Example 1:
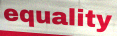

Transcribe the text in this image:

equality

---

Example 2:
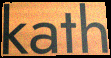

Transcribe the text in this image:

kath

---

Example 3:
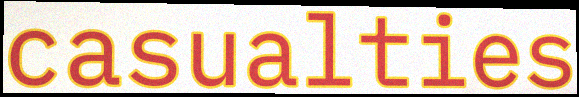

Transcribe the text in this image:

casualties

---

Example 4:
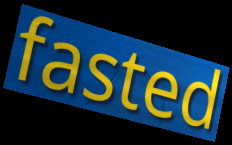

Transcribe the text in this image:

fasted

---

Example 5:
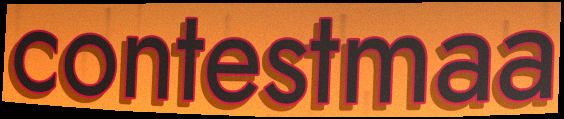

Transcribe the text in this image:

contestmaa